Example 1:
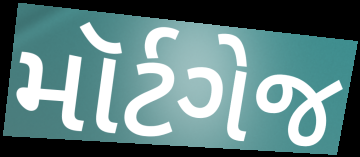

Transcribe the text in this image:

મૉર્ટગેજ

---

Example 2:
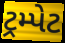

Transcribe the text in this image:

ટ્રમ્પેટ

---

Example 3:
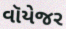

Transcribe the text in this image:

વૉયેજર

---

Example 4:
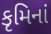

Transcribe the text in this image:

કૃમિનાં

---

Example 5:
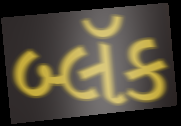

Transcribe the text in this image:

બ્લૅક